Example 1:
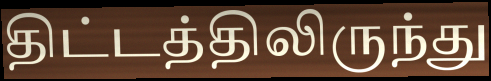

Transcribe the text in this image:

திட்டத்திலிருந்து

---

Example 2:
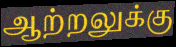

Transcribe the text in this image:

ஆற்றலுக்கு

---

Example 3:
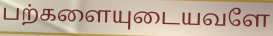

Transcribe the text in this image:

பற்களையுடையவளே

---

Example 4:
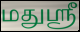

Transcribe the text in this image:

மதுஸ்ரீ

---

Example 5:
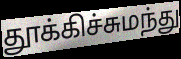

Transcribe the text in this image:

தூக்கிச்சுமந்து